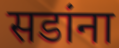
सडांना